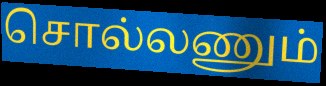
சொல்லணும்